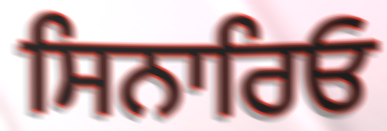
ਸਿਨਾਰਿਓ